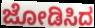
ಜೋಡಿಸಿದ